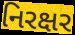
નિરક્ષર